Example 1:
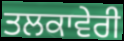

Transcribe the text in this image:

ਤਲਕਾਵੇਰੀ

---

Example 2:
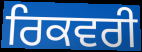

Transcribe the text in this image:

ਰਿਕਵਰੀ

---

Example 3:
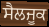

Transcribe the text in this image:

ਸੈਲਜੂਕ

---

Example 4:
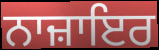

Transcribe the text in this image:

ਨਾਜ਼ਾਇਰ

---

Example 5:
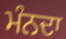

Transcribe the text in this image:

ਮੰਨਦਾ